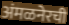
अंमळनेरची